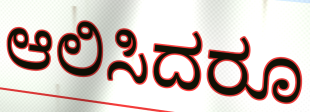
ಆಲಿಸಿದರೂ